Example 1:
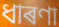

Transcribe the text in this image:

ধাৰণা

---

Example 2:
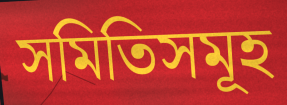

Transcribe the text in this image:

সমিতিসমূহ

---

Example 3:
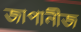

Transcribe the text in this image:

জাপানীজ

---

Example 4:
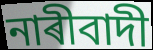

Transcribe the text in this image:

নাৰীবাদী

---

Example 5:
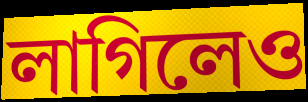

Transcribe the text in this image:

লাগিলেও